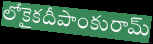
లోకైకదీపాంకురామ్